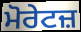
ਮੋਰੇਟਜ਼